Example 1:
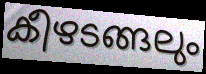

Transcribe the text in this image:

കീഴടങ്ങലും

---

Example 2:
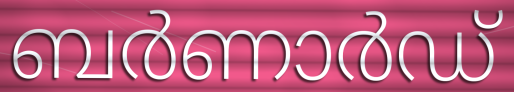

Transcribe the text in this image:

ബർണാർഡ്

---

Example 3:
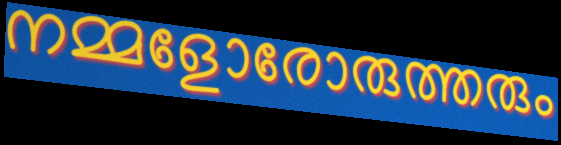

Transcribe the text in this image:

നമ്മളോരോരുത്തരും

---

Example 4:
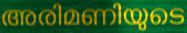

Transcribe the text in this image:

അരിമണിയുടെ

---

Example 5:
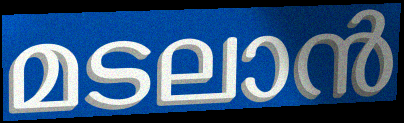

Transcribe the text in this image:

മടലാൻ